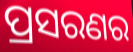
ପ୍ରସରଣର